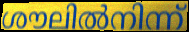
ശൗലിൽനിന്ന്